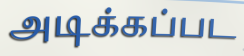
அடிக்கப்பட